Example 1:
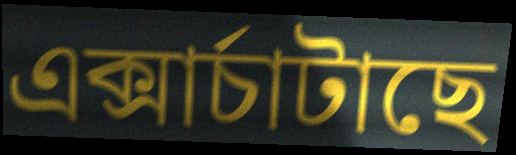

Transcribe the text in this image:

এক্সাৰ্চাটাছে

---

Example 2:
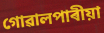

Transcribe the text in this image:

গোৱালপাৰীয়া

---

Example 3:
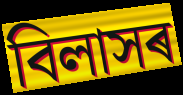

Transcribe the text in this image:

বিলাসৰ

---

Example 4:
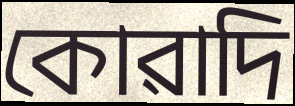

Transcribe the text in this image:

কোৱাদি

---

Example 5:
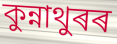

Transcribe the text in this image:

কুন্নাথুৰৰ